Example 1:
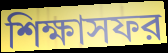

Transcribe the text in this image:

শিক্ষাসফর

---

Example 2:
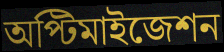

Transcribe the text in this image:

অপ্টিমাইজেশন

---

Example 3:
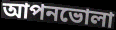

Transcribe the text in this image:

আপনভোলা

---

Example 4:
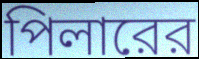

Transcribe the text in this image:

পিলারের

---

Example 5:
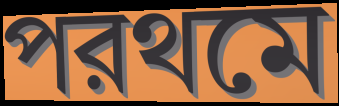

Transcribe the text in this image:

পরথমে